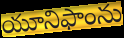
యూనిఫాంను